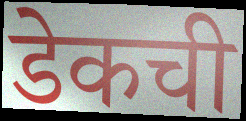
डेकची